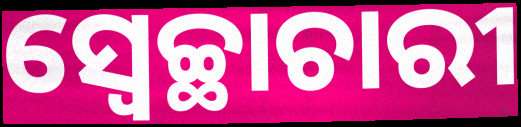
ସ୍ୱେଚ୍ଛାଚାରୀ